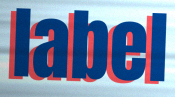
label